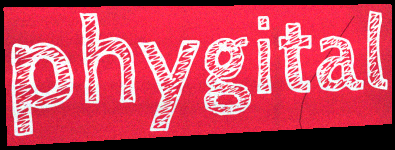
phygital